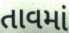
તાવમાં